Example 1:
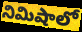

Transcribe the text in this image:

నిమిషాలో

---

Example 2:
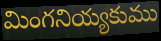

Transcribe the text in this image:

మింగనియ్యకుము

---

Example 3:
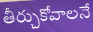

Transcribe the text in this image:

తీర్చుకోవాలనే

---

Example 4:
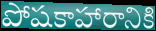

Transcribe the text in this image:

పోషకాహారానికి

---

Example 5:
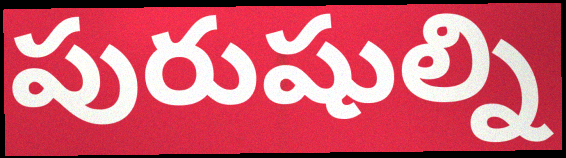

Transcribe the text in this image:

పురుషుల్ని